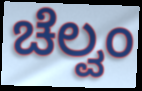
ಚೆಲ್ವಂ